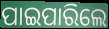
ପାଇପାରିଲେ